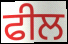
ਫੀਲ